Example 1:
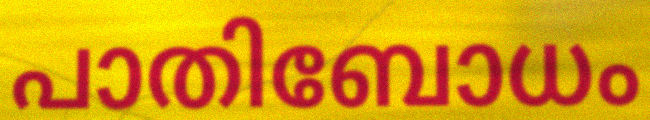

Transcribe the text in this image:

പാതിബോധം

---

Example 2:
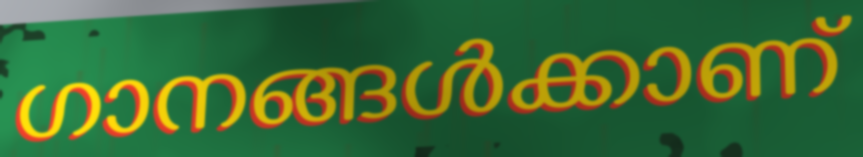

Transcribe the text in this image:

ഗാനങ്ങൾക്കാണ്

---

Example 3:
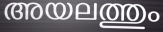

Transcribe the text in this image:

അയലത്തും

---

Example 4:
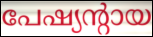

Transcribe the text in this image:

പേഷ്യന്റായ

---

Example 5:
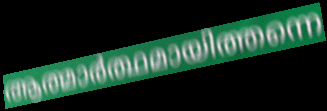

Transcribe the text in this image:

ആത്മാർത്ഥമായിത്തന്നെ